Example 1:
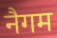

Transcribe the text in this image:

नैगम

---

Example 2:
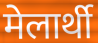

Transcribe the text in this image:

मेलार्थी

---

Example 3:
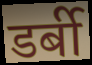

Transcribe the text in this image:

डर्बी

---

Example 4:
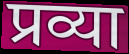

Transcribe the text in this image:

प्रव्या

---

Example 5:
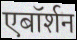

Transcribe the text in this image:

एबॉर्शन